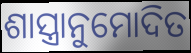
ଶାସ୍ତ୍ରାନୁମୋଦିତ